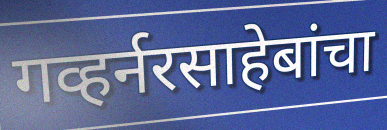
गव्हर्नरसाहेबांचा